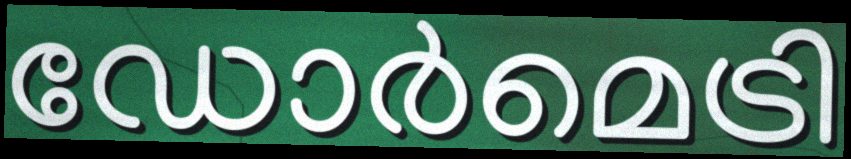
ഡോർമെട്രി